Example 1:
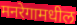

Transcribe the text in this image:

मनरेगामधील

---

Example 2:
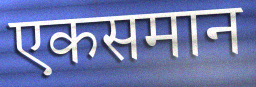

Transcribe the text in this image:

एकसमान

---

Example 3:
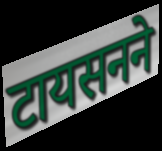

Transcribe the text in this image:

टायसनने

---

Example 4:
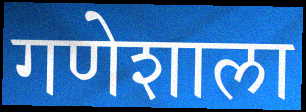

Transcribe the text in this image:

गणेशाला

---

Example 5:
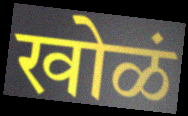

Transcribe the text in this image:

खोळं